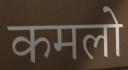
कमलो